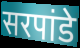
सरपांडे